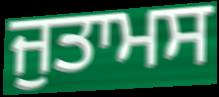
ਜੁਤਾਮਸ